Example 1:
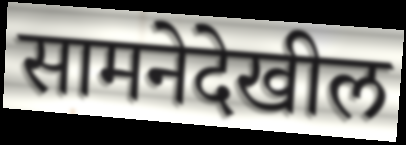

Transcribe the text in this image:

सामनेदेखील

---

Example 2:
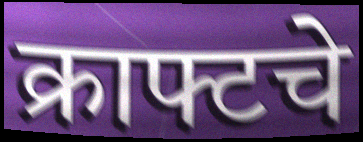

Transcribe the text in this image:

क्राफ्टचे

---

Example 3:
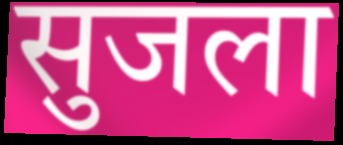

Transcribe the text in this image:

सुजला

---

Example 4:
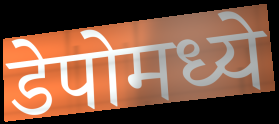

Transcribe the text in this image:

डेपोमध्ये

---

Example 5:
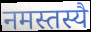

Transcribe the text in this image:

नमस्तस्यै